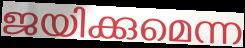
ജയിക്കുമെന്ന